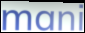
mani